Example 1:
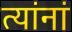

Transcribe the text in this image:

त्यांनां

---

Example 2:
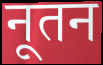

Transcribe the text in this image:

नूतन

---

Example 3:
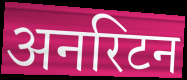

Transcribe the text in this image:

अनरिटन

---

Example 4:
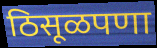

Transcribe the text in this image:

ठिसूळपणा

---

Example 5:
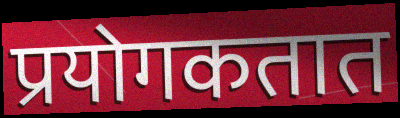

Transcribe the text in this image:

प्रयोगकतात